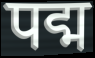
पद्म